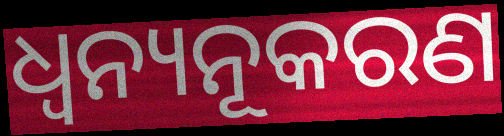
ଧ୍ୱନ୍ୟନୂକରଣ